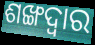
ଶଙ୍ଖଦ୍ୱାର